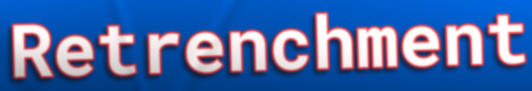
Retrenchment